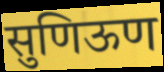
सुणिऊण